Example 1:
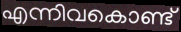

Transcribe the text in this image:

എന്നിവകൊണ്ട്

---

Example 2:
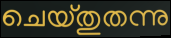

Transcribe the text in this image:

ചെയ്തുതന്നു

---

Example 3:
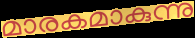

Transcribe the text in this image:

മാരകമാകുന്നു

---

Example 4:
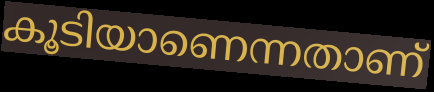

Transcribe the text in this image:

കൂടിയാണെന്നതാണ്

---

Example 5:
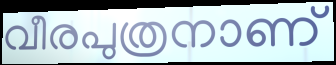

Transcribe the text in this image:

വീരപുത്രനാണ്